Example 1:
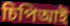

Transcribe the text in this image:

চিপিআই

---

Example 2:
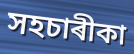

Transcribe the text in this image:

সহচাৰীকা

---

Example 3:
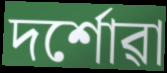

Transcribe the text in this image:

দৰ্শোৱা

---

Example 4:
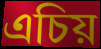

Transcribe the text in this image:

এচিয়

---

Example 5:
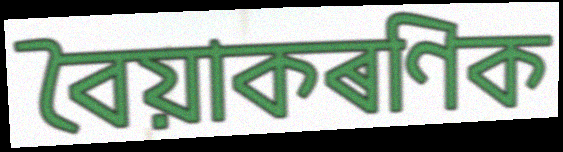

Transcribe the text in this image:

বৈয়াকৰণিক